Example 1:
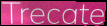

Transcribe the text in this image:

Trecate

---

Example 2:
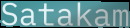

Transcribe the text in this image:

Satakam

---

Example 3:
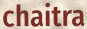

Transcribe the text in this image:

chaitra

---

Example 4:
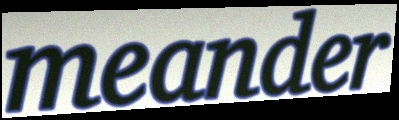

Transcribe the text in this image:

meander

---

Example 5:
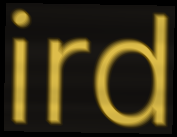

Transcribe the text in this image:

ird